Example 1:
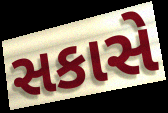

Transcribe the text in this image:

સકાસે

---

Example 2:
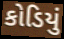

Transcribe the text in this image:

કોડિયું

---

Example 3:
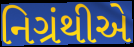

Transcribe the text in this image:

નિગ્રંથીએ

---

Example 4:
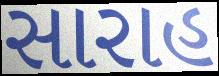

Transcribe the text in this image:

સારાહ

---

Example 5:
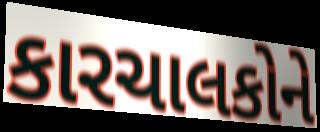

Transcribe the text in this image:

કારચાલકોને